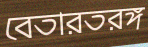
বেতারতরঙ্গ